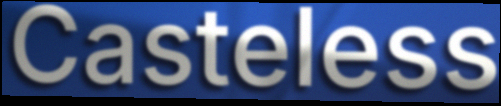
Casteless